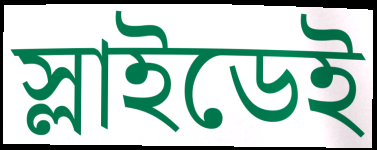
স্লাইডেই